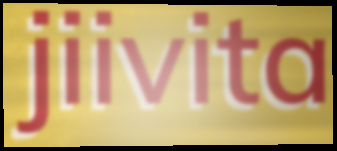
jiivita